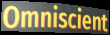
Omniscient